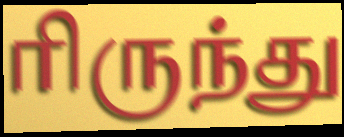
ரிருந்து